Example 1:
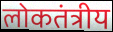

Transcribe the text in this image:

लोकतंत्रीय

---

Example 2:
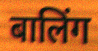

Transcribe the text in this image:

बालिंग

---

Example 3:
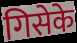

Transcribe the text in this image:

गिसेके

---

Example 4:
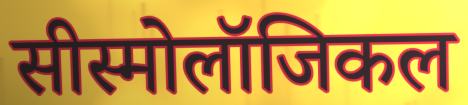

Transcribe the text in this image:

सीस्मोलॉजिकल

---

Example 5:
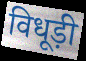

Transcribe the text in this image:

विधूड़ी